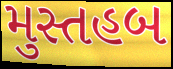
મુસ્તહબ